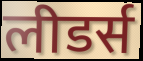
लीडर्स